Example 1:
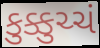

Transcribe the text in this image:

કુક્કુચ્ચં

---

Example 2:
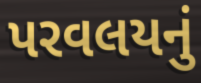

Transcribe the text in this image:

પરવલયનું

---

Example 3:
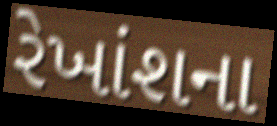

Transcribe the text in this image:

રેખાંશના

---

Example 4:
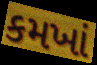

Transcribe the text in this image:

કમખાં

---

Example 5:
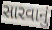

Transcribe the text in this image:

સારવાનું